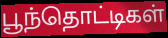
பூந்தொட்டிகள்